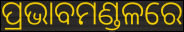
ପ୍ରଭାବମଣ୍ଡଳରେ